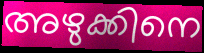
അഴുക്കിനെ